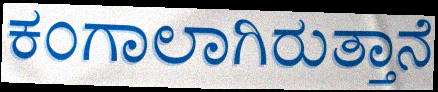
ಕಂಗಾಲಾಗಿರುತ್ತಾನೆ